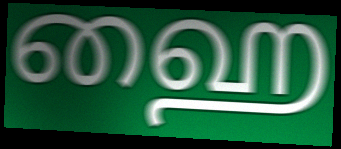
ஹை